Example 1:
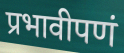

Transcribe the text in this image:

प्रभावीपणं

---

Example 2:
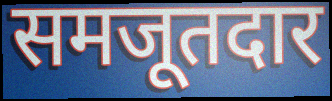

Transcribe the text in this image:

समजूतदार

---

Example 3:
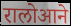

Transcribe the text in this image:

रालोआने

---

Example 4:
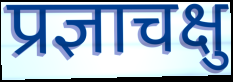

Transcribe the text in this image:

प्रज्ञाचक्षु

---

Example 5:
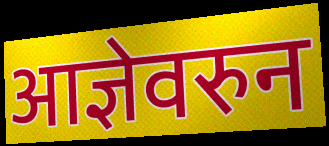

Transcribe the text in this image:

आज्ञेवरुन